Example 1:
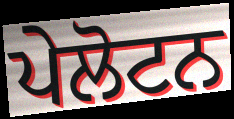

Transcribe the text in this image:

ਪੇਲੋਟਨ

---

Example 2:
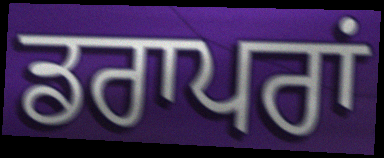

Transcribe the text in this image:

ਡਰਾਪਰਾਂ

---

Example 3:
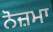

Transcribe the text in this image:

ਨੋਜ਼ਮਾ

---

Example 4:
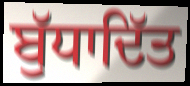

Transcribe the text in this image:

ਬੁੱਧਾਦਿੱਤ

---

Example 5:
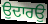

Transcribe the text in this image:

ਉਦਾਰਉ